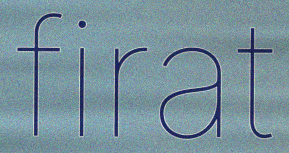
firat